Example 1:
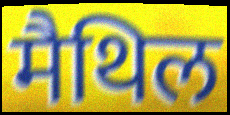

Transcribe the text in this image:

मैथिल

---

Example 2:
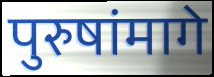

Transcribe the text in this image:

पुरुषांमागे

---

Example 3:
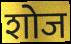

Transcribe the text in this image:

शोज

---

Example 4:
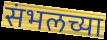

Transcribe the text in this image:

संभलच्या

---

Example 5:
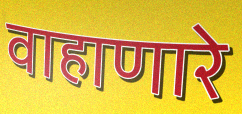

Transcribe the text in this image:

वाहाणारे